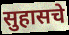
सुहासचे